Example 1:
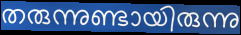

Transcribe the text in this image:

തരുന്നുണ്ടായിരുന്നു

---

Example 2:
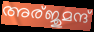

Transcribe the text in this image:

അര്ജുമന്ദ്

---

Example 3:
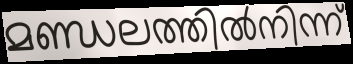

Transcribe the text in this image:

മണ്ഡലത്തിൽനിന്ന്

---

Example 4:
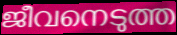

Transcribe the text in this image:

ജീവനെടുത്ത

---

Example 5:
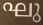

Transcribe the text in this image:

ഘു